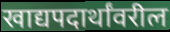
खाद्यपदार्थांवरील